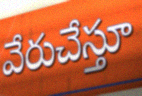
వేరుచేస్తూ